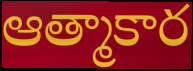
ఆత్మాకార